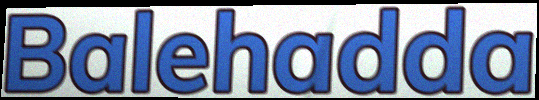
Balehadda